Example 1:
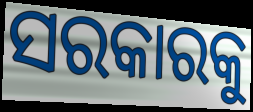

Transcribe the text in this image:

ସରକାରକୁ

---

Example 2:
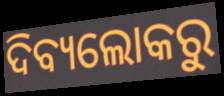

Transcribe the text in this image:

ଦିବ୍ୟଲୋକରୁ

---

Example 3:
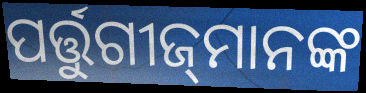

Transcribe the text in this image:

ପର୍ତ୍ତୁଗୀଜ୍‌ମାନଙ୍କ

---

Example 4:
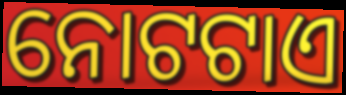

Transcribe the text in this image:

ନୋଟଟାଏ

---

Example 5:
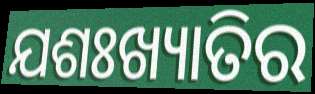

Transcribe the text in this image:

ଯଶଃଖ୍ୟାତିର